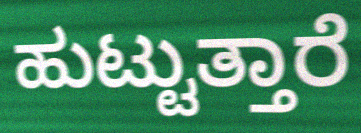
ಹುಟ್ಟುತ್ತಾರೆ